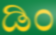
ಡಿಂ